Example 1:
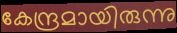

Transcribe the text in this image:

കേന്ദ്രമായിരുന്നു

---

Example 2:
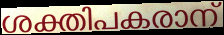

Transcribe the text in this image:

ശക്തിപകരാന്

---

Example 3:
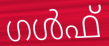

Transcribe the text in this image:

ഗൾഫ്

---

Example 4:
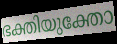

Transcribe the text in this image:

ഭക്തിയുക്തോ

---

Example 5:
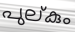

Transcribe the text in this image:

പുല്കും